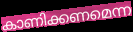
കാണിക്കണമെന്ന